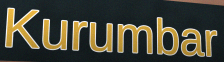
Kurumbar